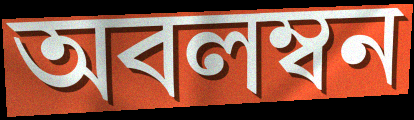
অবলম্বন